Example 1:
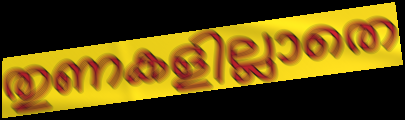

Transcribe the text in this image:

തുണകളില്ലാതെ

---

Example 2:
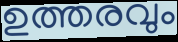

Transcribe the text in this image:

ഉത്തരവും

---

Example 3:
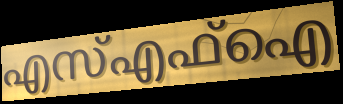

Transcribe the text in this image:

എസ്എഫ്ഐ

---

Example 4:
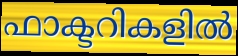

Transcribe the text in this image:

ഫാക്ടറികളിൽ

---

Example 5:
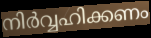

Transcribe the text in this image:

നിർവ്വഹിക്കണം